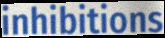
inhibitions